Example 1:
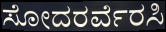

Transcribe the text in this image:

ಸೋದರರ್ವೆರಸಿ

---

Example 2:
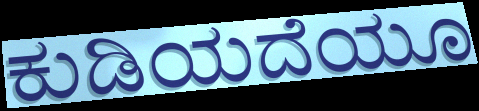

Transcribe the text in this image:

ಕುಡಿಯದೆಯೂ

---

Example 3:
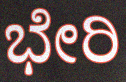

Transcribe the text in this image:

ಭೇರಿ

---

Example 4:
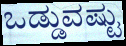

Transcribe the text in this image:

ಒಡ್ಡುವಷ್ಟು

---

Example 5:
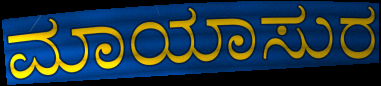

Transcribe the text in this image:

ಮಾಯಾಸುರ